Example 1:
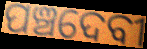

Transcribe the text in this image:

ପଞ୍ଚଦେବୀ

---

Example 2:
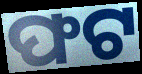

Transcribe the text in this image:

ଫଟ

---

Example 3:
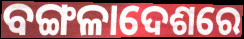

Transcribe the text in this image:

ବଙ୍ଗଳାଦେଶରେ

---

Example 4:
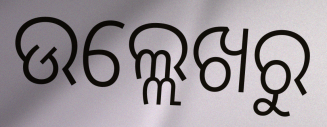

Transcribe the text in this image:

ଉଲ୍ଲେଖରୁ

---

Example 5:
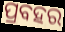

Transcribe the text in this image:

ପ୍ରବହର